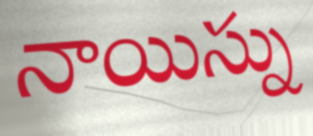
నాయిస్ను